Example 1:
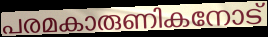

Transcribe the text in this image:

പരമകാരുണികനോട്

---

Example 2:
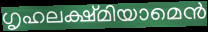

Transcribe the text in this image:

ഗൃഹലക്ഷ്മിയാമെൻ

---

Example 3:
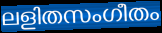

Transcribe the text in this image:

ലളിതസംഗീതം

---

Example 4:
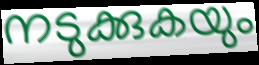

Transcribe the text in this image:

നടുക്കുകയും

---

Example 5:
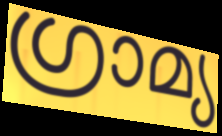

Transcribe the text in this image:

ഗ്രാമ്യ